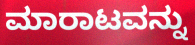
ಮಾರಾಟವನ್ನು